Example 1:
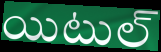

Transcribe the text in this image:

యిటుల్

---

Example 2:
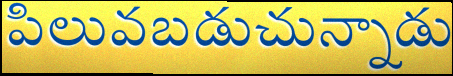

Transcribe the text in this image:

పిలువబడుచున్నాడు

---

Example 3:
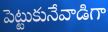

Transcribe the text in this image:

పెట్టుకునేవాడిగా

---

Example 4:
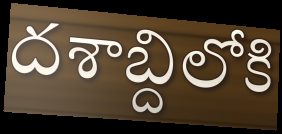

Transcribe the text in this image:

దశాబ్దిలోకి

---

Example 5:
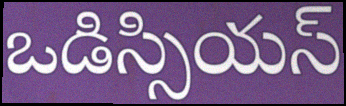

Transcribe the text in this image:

ఒడిస్సియస్